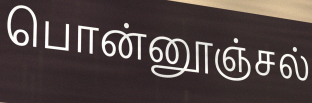
பொன்னூஞ்சல்